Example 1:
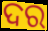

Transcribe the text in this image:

ଦର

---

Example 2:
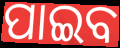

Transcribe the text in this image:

ପାଇବ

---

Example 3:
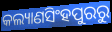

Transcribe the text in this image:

କଲ୍ୟାଣସିଂହପୁରରୁ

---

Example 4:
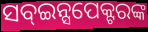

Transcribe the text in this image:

ସବ୍ଇନ୍ସପେକ୍ଟରଙ୍କ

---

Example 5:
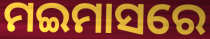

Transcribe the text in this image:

ମଇମାସରେ